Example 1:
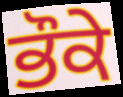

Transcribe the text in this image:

ਭੌਕੇ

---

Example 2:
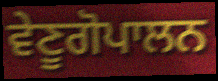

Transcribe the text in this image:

ਵੇਣੂਗੋਪਾਲਨ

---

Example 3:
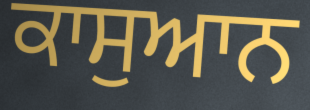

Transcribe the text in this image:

ਕਾਸੁਆਨ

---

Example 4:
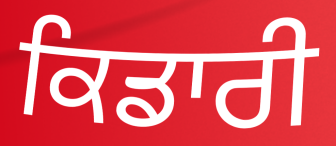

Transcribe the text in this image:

ਕਿਡਾਰੀ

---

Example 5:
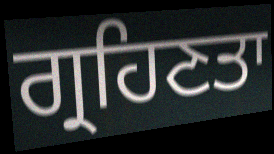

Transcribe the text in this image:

ਗ੍ਰਹਿਣਤਾ